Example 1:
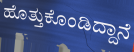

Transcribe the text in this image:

ಹೊತ್ತುಕೊಂಡಿದ್ದಾನೆ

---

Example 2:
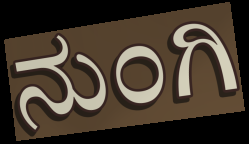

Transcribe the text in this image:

ನುಂಗಿ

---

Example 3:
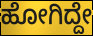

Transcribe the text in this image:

ಹೋಗಿದ್ದೇ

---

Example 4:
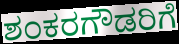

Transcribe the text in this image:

ಶಂಕರಗೌಡರಿಗೆ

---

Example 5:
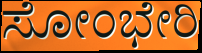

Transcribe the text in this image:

ಸೋಂಭೇರಿ